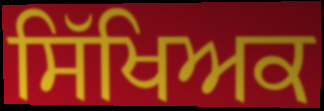
ਸਿੱਖਿਅਕ